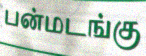
பன்மடங்கு